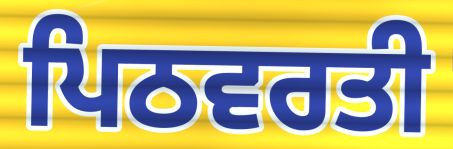
ਪਿਠਵਰਤੀ